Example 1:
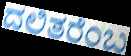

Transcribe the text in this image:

ದಲಿತರೆಂಬ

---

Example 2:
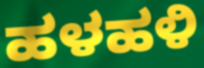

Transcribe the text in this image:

ಹಳಹಳಿ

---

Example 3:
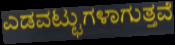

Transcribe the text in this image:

ಎಡವಟ್ಟುಗಳಾಗುತ್ತವೆ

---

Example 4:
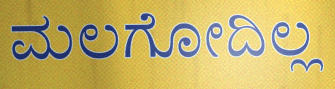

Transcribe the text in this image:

ಮಲಗೋದಿಲ್ಲ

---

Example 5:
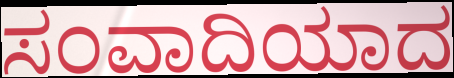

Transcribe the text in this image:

ಸಂವಾದಿಯಾದ